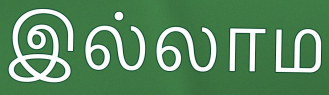
இல்லாம